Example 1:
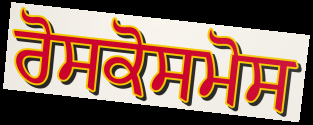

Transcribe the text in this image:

ਰੋਸਕੋਸਮੋਸ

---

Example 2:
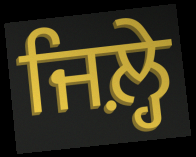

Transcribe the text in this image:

ਜਿਲ਼੍ਹੇ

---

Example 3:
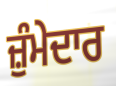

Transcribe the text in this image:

ਜ਼ੁੰਮੇਦਾਰ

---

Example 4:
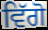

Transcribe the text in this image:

ਵਿੱਗੋ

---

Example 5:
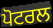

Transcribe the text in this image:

ਪੋਟਰਲ